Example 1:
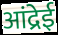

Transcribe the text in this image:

आंद्रेई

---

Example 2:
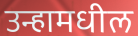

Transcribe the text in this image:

उन्हामधील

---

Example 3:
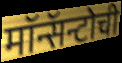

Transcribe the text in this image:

मॉन्सॅन्टोची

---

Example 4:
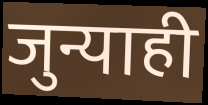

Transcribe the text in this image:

जुन्याही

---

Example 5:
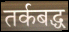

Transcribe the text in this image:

तर्कबद्ध